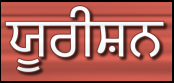
ਯੂਰੀਸ਼ਨ